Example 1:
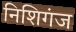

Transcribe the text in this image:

निशिगंज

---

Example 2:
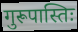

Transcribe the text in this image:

गुरूपास्तिः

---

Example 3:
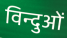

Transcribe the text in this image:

विन्दुओं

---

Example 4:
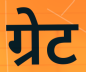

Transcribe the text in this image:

ग्रेट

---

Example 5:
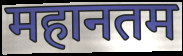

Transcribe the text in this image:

महानतम